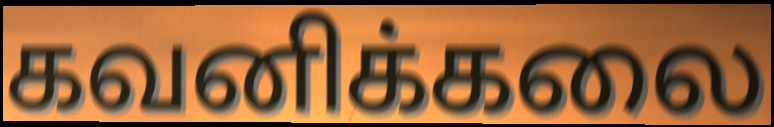
கவனிக்கலை